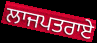
ਲਾਜਪਤਰਾਏ